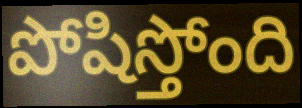
పోషిస్తోంది